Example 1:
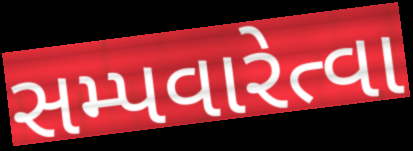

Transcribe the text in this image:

સમ્પવારેત્વા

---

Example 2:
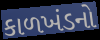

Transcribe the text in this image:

કાળખંડનો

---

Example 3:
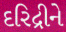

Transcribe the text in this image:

દરિદ્રીને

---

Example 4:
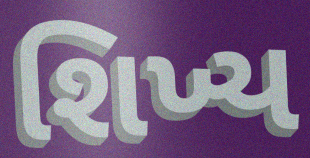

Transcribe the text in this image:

શિખ્ય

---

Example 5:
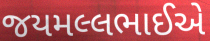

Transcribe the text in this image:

જયમલ્લભાઈએ